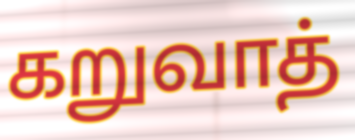
கறுவாத்